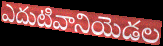
ఎదుటివానియెడల